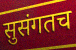
सुसंगतच